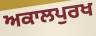
ਅਕਾਲਪੁਰਖ